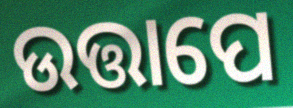
ଉତ୍ତାପେ